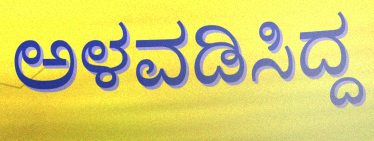
ಅಳವಡಿಸಿದ್ದ